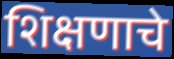
शिक्षणाचे